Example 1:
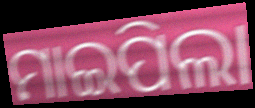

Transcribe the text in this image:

ମାଇପିଲା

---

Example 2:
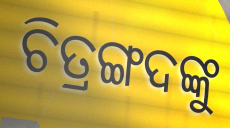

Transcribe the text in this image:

ଚିତ୍ରଙ୍ଗଦଙ୍କୁ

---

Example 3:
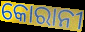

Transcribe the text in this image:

କୋରାନୀ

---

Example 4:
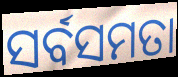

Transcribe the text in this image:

ସର୍ବସମତା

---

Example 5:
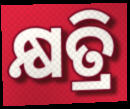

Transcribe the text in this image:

କ୍ଷତ୍ରି